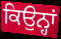
ਕਿਉਨ੍ਹਾਂ